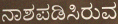
ನಾಶಪಡಿಸಿರುವ